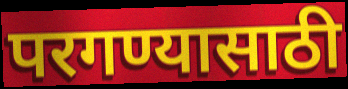
परगण्यासाठी